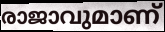
രാജാവുമാണ്